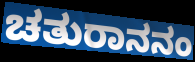
ಚತುರಾನನಂ